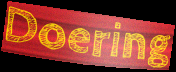
Doering